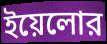
ইয়েলোর